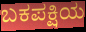
ಬಕಪಕ್ಷಿಯ